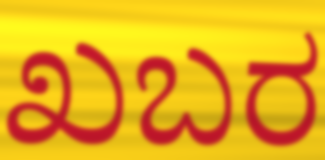
ಖಬರ